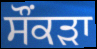
ਸੌਂਕੜਾ